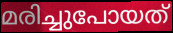
മരിച്ചുപോയത്